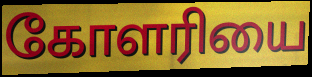
கோளரியை